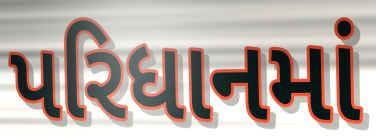
પરિધાનમાં